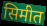
सिमीत